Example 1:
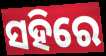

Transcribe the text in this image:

ସହିରେ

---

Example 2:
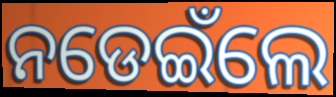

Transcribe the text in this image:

ନଡେଇଁଲେ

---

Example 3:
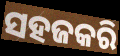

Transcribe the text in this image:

ସହଜକରି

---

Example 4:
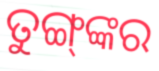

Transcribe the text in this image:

ତୁଙ୍ଗ୍‍ଙ୍କର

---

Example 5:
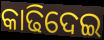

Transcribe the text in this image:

କାଢିଦେଇ